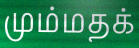
மும்மதக்